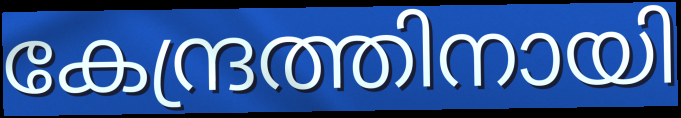
കേന്ദ്രത്തിനായി